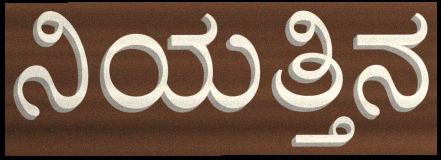
ನಿಯತ್ತಿನ